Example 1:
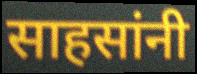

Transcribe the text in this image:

साहसांनी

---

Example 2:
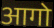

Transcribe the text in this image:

आगो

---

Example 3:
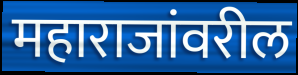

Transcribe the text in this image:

महाराजांवरील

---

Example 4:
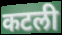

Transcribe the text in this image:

कटली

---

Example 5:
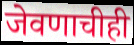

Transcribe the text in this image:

जेवणाचीही